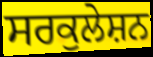
ਸਰਕੁਲੇਸ਼ਨ